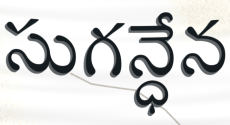
సుగన్ధేన